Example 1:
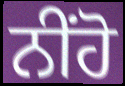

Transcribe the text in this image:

ਨੀਂਹੋ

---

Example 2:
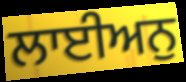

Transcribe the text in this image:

ਲਾਈਅਨੁ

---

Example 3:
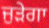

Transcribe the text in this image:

ਜੁੜੇਗਾ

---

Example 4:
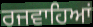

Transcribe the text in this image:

ਰਜਵਾਹਿਆਂ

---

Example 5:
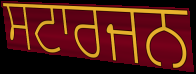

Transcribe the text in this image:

ਸਟਾਰਜਨ